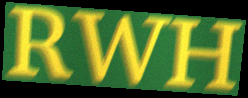
RWH